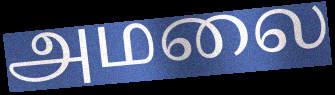
அமலை